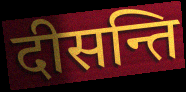
दीसन्ति